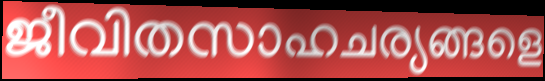
ജീവിതസാഹചര്യങ്ങളെ